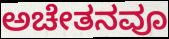
ಅಚೇತನವೂ